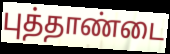
புத்தாண்டை